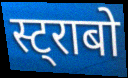
स्ट्राबो